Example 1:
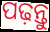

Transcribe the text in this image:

ପଢ଼ନ୍ତୁ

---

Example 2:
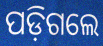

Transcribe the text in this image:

ପଡ଼ିଗଲେ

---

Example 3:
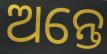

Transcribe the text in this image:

ଅନ୍ତେ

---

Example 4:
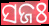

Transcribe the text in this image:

ସଜଃ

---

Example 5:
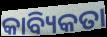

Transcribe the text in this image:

କାବ୍ୟିକତା